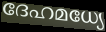
ദേഹമധ്യേ